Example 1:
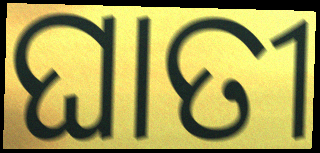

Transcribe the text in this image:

ଘାତୀ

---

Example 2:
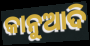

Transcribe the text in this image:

କାନୁଆଦି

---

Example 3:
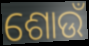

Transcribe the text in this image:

ଶୋଉଁ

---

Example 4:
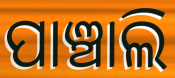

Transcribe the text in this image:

ପାଞ୍ଚାଲି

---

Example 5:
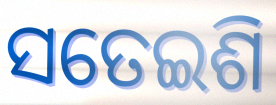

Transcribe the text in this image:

ସତେଇଶି